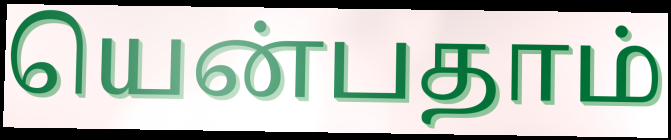
யென்பதாம்